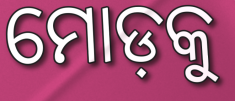
ମୋଡ଼କୁ